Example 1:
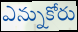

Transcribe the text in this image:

ఎన్నుకోరు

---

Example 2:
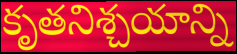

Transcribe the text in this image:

కృతనిశ్చయాన్ని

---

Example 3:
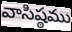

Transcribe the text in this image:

వాసిష్ఠము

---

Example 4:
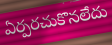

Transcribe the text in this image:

ఏర్పరచుకొనలేదు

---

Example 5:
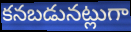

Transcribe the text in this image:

కనబడునట్లుగా